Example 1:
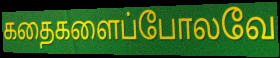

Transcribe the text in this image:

கதைகளைப்போலவே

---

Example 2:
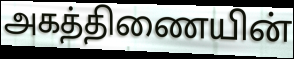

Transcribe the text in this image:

அகத்திணையின்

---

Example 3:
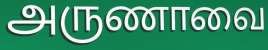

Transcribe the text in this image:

அருணாவை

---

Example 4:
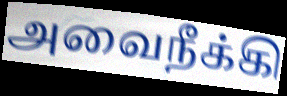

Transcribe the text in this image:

அவைநீக்கி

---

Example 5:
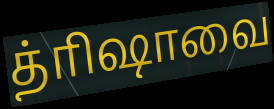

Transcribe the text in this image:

த்ரிஷாவை